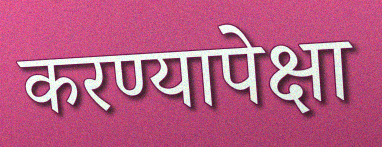
करण्यापेक्षा